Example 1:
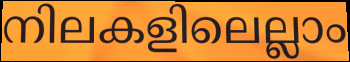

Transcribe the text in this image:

നിലകളിലെല്ലാം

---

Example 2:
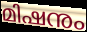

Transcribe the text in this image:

മിഷനും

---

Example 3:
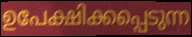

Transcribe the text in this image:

ഉപേക്ഷിക്കപ്പെടുന്ന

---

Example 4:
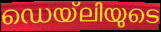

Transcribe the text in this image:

ഡെയ്‌ലിയുടെ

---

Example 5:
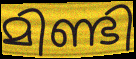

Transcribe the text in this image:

മിണ്ടി